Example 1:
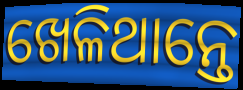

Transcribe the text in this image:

ଖେଳିଥାନ୍ତେ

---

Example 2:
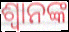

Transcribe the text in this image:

ଶ୍ବାନଙ୍କ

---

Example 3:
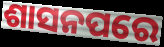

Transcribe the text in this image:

ଶାସନପରେ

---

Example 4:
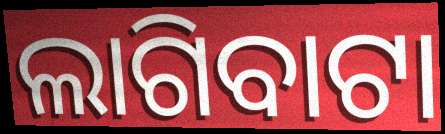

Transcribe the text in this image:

ଲାଗିବାଟା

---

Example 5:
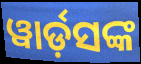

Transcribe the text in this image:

ୱାର୍ଡ଼ସଙ୍କ